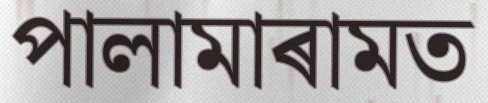
পালামাৰামত